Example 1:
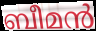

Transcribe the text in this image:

ബീമൻ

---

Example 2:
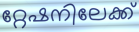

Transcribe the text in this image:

റ്റേഷനിലേക്ക്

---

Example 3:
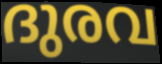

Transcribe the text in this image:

ദുരവ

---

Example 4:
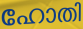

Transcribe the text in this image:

ഹോതി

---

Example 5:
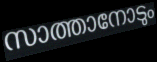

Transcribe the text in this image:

സാത്താനോടും